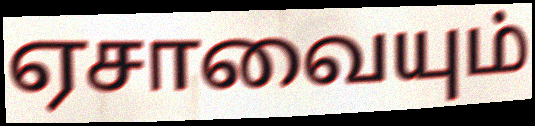
ஏசாவையும்